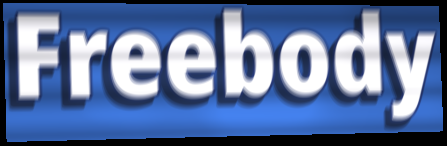
Freebody